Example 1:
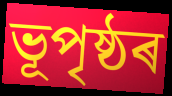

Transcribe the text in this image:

ভূপৃষ্ঠৰ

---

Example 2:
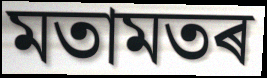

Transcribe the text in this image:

মতামতৰ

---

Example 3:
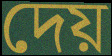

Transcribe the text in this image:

দেয়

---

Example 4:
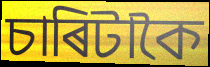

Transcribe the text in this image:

চাৰিটাকৈ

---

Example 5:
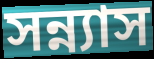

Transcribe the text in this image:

সন্ন্যাস